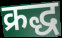
क्रद्ध